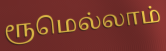
ரூமெல்லாம்